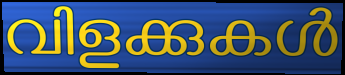
വിളക്കുകൾ